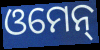
ଓମେନ୍